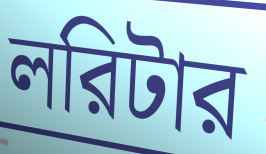
লরিটার